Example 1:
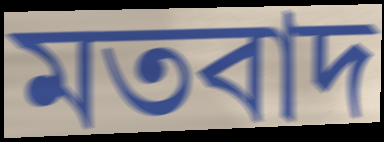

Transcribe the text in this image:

মতবাদ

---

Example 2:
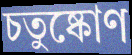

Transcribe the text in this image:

চতুষ্কোণ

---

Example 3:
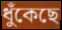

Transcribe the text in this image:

ধুঁকেছে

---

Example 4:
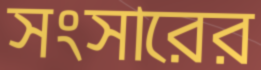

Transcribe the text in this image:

সংসারের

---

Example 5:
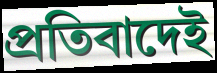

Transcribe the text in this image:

প্রতিবাদেই